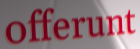
offerunt